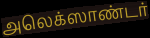
அலெக்ஸாண்டர்